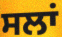
ਸਲਾਂ